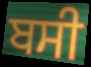
ਬਸੀ